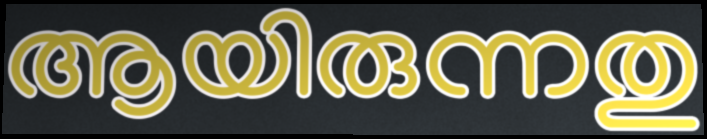
ആയിരുന്നതു